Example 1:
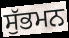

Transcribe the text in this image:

ਸੁੱਭਮਨ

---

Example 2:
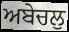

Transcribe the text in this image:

ਅਬੇਚਲੁ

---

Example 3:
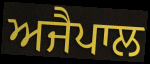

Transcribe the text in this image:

ਅਜੈਪਾਲ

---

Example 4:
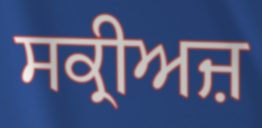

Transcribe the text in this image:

ਸਕ੍ਰੀਅਜ਼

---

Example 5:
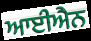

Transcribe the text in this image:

ਆਈਐਨ